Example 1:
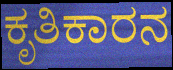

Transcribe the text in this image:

ಕೃತಿಕಾರನ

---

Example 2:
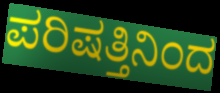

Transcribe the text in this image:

ಪರಿಷತ್ತಿನಿಂದ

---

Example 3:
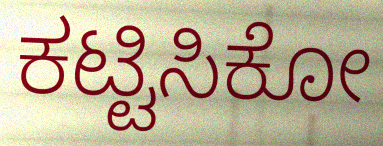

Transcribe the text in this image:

ಕಟ್ಟಿಸಿಕೋ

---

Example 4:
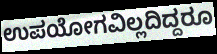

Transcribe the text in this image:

ಉಪಯೋಗವಿಲ್ಲದಿದ್ದರೂ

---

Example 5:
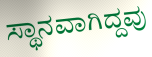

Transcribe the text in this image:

ಸ್ಥಾನವಾಗಿದ್ದವು